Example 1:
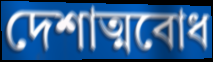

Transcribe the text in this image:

দেশাত্মবোধ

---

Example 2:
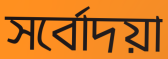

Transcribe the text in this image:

সৰ্বোদয়া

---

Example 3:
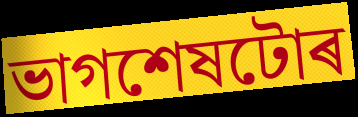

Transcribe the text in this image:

ভাগশেষটোৰ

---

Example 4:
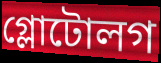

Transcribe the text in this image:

গ্লোটোলগ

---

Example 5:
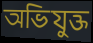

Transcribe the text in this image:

অভিযুক্ত